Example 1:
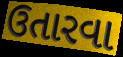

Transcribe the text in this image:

ઉતારવા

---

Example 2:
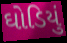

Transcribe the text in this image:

ઘોડિયું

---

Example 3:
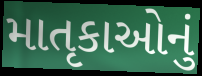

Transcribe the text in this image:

માતૃકાઓનું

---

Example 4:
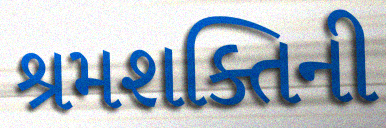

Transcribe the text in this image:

શ્રમશક્તિની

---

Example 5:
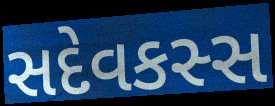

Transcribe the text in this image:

સદેવકસ્સ